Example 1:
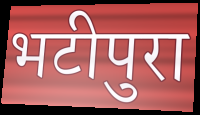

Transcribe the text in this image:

भटीपुरा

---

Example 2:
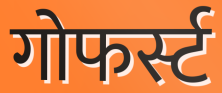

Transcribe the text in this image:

गोफर्स्ट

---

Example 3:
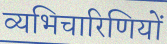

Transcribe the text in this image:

व्यभिचारिणियों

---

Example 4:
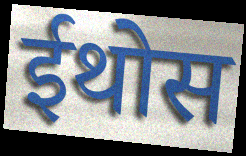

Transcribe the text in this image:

ईथोस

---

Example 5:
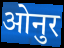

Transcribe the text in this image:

ओनुर